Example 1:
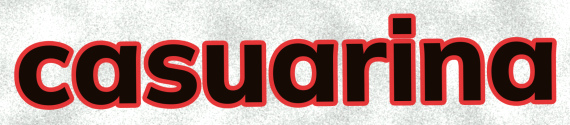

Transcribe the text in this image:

casuarina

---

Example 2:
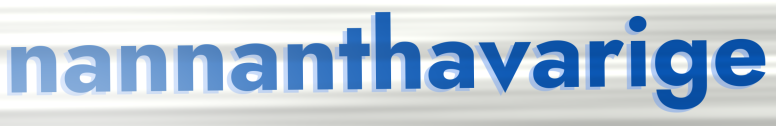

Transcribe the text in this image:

nannanthavarige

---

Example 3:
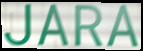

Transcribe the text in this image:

JARA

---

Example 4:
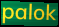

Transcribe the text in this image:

palok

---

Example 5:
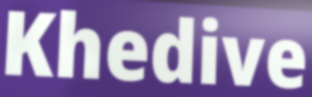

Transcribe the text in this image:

Khedive